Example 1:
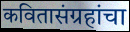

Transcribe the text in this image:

कवितासंग्रहांचा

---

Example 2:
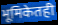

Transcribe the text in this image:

भूमिकेतही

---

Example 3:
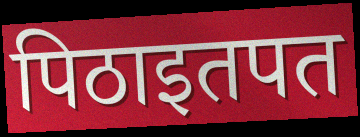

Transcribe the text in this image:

पिठाइतपत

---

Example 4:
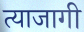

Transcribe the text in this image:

त्याजागी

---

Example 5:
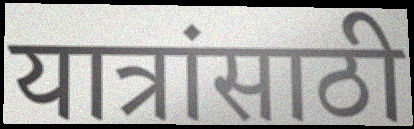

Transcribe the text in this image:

यात्रांसाठी